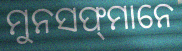
ମୁନସଫ୍‍ମାନେ